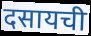
दसायची